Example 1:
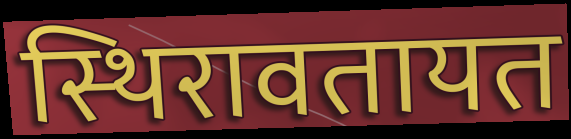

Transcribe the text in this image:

स्थिरावतायत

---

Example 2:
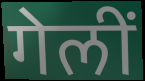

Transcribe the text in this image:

गेलीं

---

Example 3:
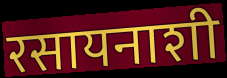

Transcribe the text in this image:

रसायनाशी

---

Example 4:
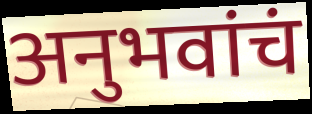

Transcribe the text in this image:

अनुभवांचं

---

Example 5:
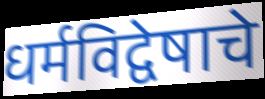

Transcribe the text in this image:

धर्मविद्वेषाचे